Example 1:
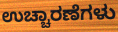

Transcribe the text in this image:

ಉಚ್ಚಾರಣೆಗಳು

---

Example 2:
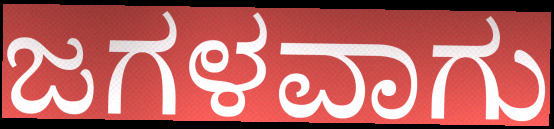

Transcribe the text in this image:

ಜಗಳವಾಗು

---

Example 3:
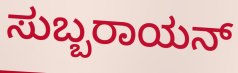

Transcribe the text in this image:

ಸುಬ್ಬರಾಯನ್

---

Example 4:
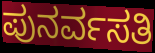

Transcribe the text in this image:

ಪುನರ್ವಸತಿ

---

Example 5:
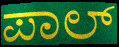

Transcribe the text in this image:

ಪಾಲ್